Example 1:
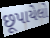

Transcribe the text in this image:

છૂપાયેલો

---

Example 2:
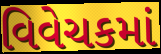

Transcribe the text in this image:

વિવેચકમાં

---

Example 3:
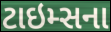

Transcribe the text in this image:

ટાઇમ્સના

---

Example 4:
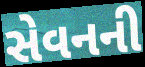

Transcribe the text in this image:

સેવનની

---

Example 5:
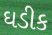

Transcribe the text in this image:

ઘડીક